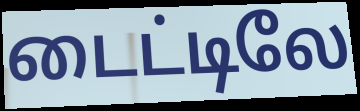
டைட்டிலே